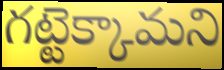
గట్టెక్కామని